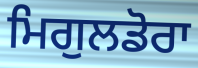
ਮਿਗੁਲਡੋਰਾ